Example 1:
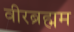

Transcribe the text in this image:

वीरब्रह्मम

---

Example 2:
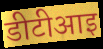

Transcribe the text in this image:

डीटीआइ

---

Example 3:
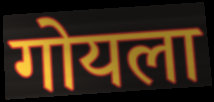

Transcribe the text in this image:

गोयला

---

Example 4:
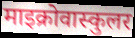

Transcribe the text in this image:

माइक्रोवास्कुलर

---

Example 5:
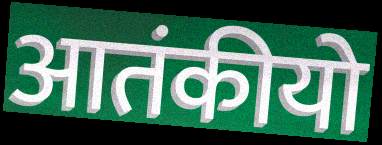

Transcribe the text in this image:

आतंकीयो